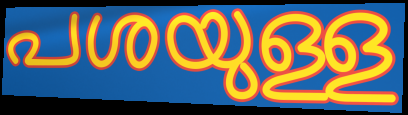
പശയുള്ള